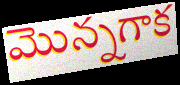
మొన్నగాక